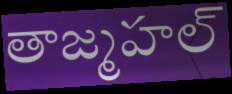
తాజ్మహల్